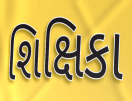
શિક્ષિકા